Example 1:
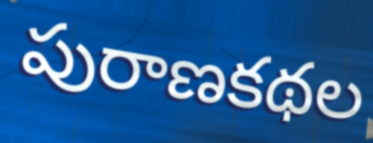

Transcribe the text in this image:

పురాణకథల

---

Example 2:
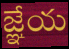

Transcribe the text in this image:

జ్ఞేయ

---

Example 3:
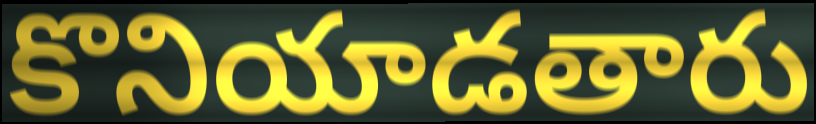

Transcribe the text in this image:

కొనియాడతారు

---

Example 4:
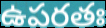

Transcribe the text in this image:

ఉపరతః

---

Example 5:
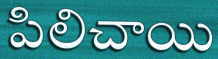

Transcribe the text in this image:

పిలిచాయి